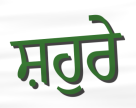
ਸ਼ਹੁਰੇ